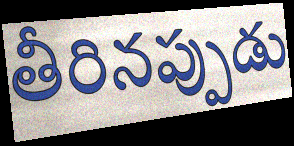
తీరినప్పుడు